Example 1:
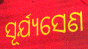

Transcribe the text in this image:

ସୂର୍ଯ୍ୟସେଣ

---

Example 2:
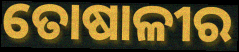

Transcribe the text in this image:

ତୋଷାଳୀର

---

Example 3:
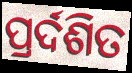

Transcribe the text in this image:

ପ୍ରର୍ଦଶିତ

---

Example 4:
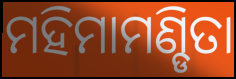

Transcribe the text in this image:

ମହିମାମଣ୍ଡିତା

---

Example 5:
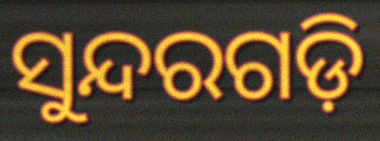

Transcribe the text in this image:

ସୁନ୍ଦରଗଡ଼ି